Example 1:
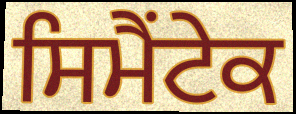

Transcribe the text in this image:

ਸਿਮੈਂਟੇਕ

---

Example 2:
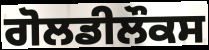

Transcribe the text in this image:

ਗੋਲਡੀਲੌਕਸ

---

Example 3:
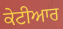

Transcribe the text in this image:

ਕੇਟੀਆਰ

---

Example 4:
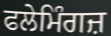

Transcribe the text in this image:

ਫਲੇਮਿੰਗਜ਼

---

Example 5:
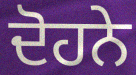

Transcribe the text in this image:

ਦੋਹਨੇ